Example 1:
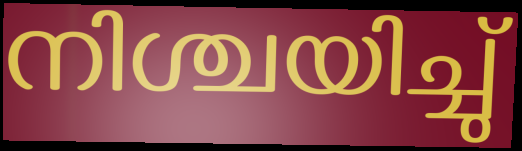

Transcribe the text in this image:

നിശ്ചയിച്ചു്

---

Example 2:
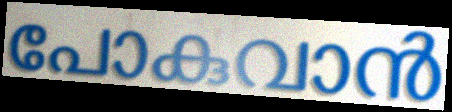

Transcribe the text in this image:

പോകുവാൻ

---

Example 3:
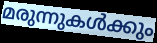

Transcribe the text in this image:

മരുന്നുകൾക്കും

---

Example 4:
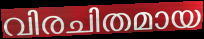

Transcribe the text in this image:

വിരചിതമായ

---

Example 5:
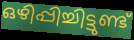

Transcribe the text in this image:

ഒഴിപ്പിച്ചിട്ടുണ്ട്